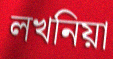
লখনিয়া